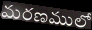
మరణములో